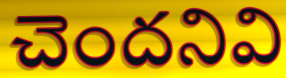
చెందనివి